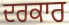
ਦਰਕਾਰ